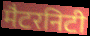
मैटरनिटी